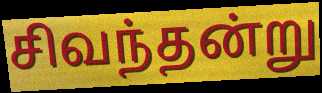
சிவந்தன்று